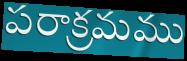
పరాక్రమము